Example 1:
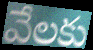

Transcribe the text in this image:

వేలకు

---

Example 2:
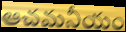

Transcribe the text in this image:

ఆచమనీయం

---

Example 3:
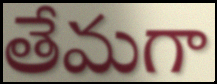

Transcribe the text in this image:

తేమగా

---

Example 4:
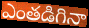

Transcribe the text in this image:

ఎంతడిగినా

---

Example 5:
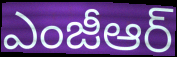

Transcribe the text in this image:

ఎంజీఆర్